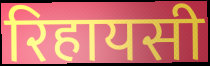
रिहायसी